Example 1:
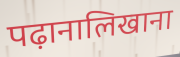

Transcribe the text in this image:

पढ़ानालिखाना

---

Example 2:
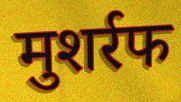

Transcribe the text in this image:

मुशर्रफ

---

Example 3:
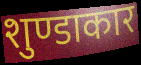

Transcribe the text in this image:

शुण्डाकार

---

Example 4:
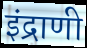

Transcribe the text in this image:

इंद्राणी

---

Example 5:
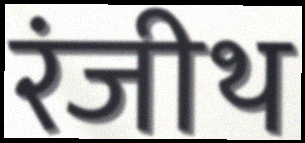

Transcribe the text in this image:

रंजीथ